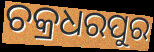
ଚକ୍ରଧରପୁର